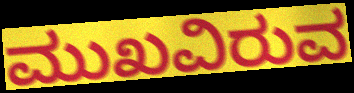
ಮುಖವಿರುವ